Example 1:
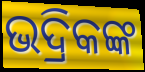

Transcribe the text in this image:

ଭଦ୍ରିକଙ୍କ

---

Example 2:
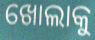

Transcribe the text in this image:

ଖୋଲାକୁ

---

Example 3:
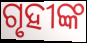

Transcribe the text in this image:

ଗୃହୀଙ୍କ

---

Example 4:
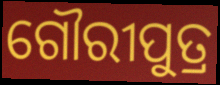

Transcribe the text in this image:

ଗୌରୀପୁତ୍ର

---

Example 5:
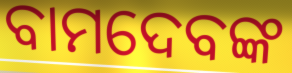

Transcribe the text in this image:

ବାମଦେବଙ୍କ